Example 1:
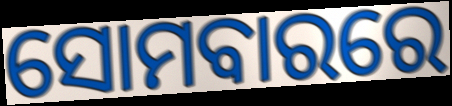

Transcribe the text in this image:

ସୋମବାରରେ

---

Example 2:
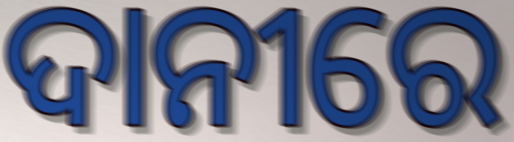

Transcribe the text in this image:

ଦାନୀରେ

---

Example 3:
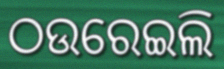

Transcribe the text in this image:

ଠଉରେଇଲି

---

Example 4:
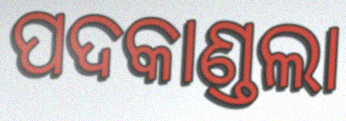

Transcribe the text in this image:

ପଦକାଣ୍ଡଲା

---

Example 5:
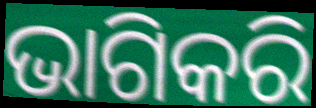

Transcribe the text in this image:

ଭାଗିକରି